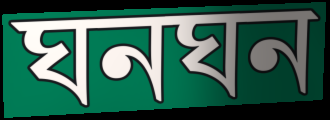
ঘনঘন